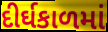
દીર્ઘકાળમાં